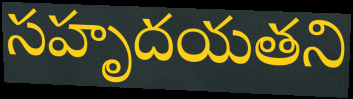
సహృదయతని